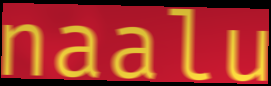
naalu